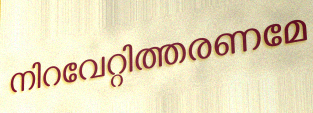
നിറവേറ്റിത്തരണമേ